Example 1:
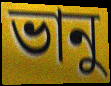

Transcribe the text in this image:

ভানু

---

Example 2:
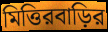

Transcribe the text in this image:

মিত্তিরবাড়ির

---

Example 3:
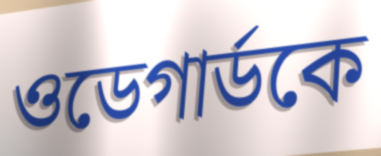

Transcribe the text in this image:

ওডেগার্ডকে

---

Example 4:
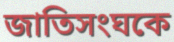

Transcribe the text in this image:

জাতিসংঘকে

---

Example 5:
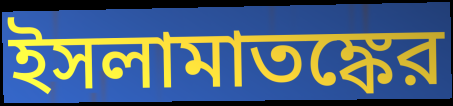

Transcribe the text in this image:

ইসলামাতঙ্কের